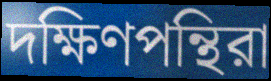
দক্ষিণপন্থিরা